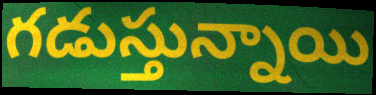
గడుస్తున్నాయి